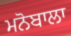
ਮਨੋਬਾਲਾ